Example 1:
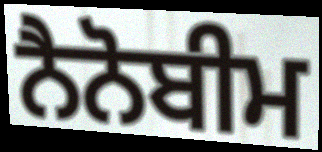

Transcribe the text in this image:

ਨੈਨੋਬੀਮ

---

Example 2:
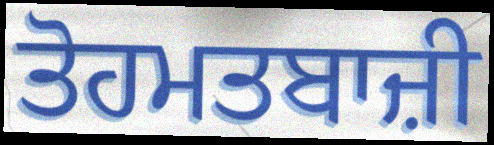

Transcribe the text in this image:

ਤੋਹਮਤਬਾਜ਼ੀ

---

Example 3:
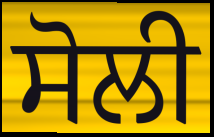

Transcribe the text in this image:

ਸੋਲੀ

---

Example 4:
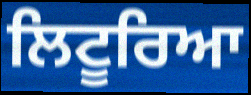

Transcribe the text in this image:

ਲਿਟੂਰਿਆ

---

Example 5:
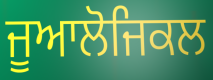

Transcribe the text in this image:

ਜੂਆਲੋਜਿਕਲ